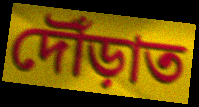
দৌঁড়াত